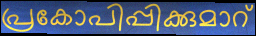
പ്രകോപിപ്പിക്കുമാറ്